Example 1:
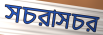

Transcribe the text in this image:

সচরাসচর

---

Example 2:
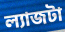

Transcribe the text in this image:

ল্যাজটা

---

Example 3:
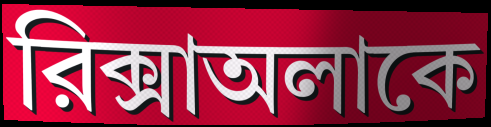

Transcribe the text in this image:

রিক্সাঅলাকে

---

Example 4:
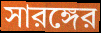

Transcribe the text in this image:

সারঙ্গের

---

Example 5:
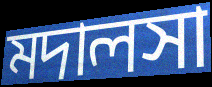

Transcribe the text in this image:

মদালসা